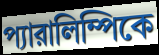
প্যারালিম্পিকে